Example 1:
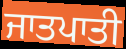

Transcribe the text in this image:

ਜਾਤਪਾਤੀ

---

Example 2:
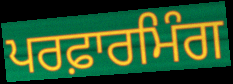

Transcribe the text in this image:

ਪਰਫ਼ਾਰਮਿੰਗ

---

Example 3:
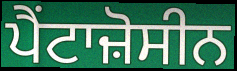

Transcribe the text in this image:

ਪੈਂਟਾਜ਼ੋਸੀਨ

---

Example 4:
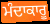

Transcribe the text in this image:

ਮੰਦਾਕਾਰੂ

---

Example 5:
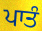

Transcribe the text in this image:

ਪਾਤੰ